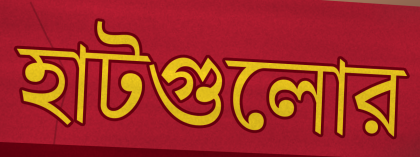
হাটগুলোর